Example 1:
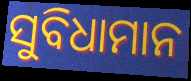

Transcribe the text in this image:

ସୁବିଧାମାନ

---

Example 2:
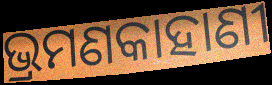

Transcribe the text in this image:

ଭ୍ରମଣକାହାଣୀ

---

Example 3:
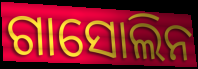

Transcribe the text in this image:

ଗାସୋଲିନ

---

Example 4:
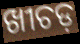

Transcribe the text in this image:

ଖୀଚଡ଼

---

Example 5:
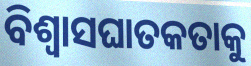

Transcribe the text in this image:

ବିଶ୍ୱାସଘାତକତାକୁ